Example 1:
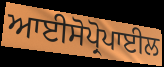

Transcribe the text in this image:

ਆਈਸੋਪ੍ਰੋਪਾਈਲ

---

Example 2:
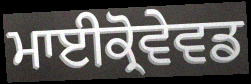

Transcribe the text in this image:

ਮਾਈਕ੍ਰੋਵੇਵਡ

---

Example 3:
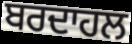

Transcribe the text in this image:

ਬਰਦਾਹਲ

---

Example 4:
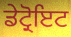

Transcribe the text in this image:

ਡੇਟ੍ਰੋਇਟ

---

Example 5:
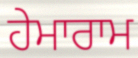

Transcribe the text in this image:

ਹੇਮਾਰਾਮ